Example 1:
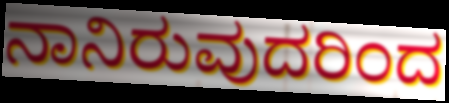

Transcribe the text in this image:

ನಾನಿರುವುದರಿಂದ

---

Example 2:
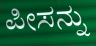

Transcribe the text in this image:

ಪೀಸನ್ನು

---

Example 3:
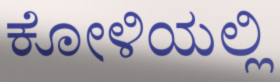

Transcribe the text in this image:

ಕೋಳಿಯಲ್ಲಿ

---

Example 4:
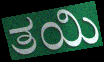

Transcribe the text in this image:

ತಯಿ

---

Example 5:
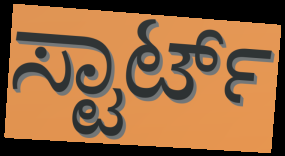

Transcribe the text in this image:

ಸ್ಟಾರ್ಟ್